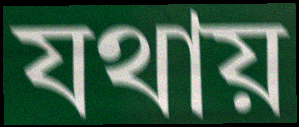
যথায়